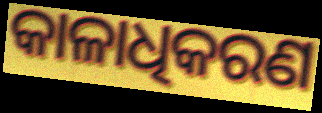
କାଳାଧିକରଣ